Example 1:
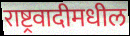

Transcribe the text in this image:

राष्ट्रवादीमधील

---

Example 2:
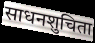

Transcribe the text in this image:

साधनशुचिता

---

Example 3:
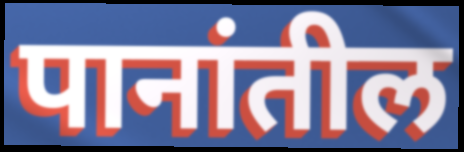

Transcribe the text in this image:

पानांतील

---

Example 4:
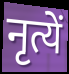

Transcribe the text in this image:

नृत्यें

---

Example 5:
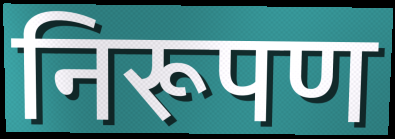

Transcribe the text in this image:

निरूपण